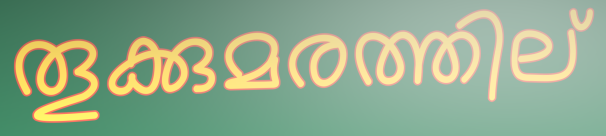
തൂക്കുമരത്തില്